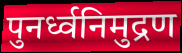
पुनर्ध्वनिमुद्रण